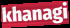
khanagi